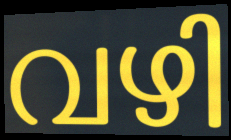
വഴി